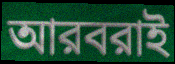
আরবরাই